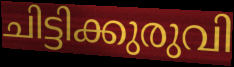
ചിട്ടിക്കുരുവി